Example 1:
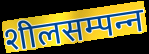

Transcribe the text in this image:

शीलसम्पन्न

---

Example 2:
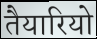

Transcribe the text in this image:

तैयारियो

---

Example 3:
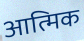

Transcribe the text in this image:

आत्मिक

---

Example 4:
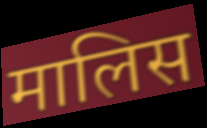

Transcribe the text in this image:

मालिस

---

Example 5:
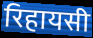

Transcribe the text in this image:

रिहायसी